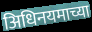
अिधिनयमाच्या